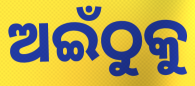
ଅଇଁଠୁକୁ